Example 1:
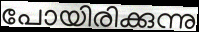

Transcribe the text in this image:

പോയിരിക്കുന്നു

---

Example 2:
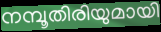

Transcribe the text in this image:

നമ്പൂതിരിയുമായി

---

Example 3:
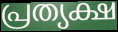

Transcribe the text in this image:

പ്രത്യക്ഷ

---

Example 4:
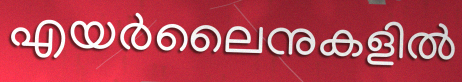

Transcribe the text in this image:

എയർലൈനുകളിൽ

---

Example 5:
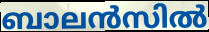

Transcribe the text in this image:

ബാലൻസിൽ